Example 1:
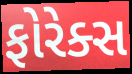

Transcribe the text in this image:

ફોરેક્સ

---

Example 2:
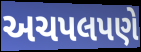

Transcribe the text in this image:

અચપલપણે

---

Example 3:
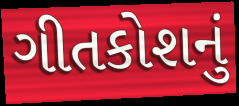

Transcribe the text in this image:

ગીતકોશનું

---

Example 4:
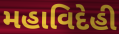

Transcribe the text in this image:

મહાવિદેહી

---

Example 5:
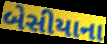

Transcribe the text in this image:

બેસીયાના